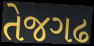
તેજગઢ